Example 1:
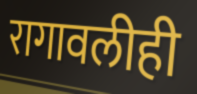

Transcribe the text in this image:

रागावलीही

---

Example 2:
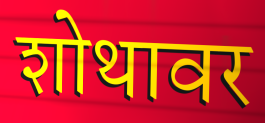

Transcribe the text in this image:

शोथावर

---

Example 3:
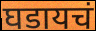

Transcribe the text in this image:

घडायचं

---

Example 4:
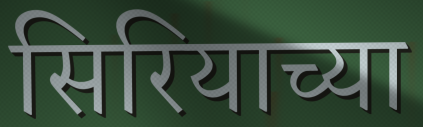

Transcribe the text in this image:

सिरियाच्या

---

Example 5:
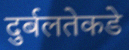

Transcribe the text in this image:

दुर्बलतेकडे